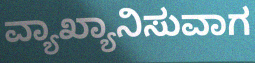
ವ್ಯಾಖ್ಯಾನಿಸುವಾಗ